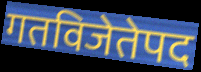
गतविजेतेपद